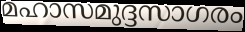
മഹാസമുദ്ദസാഗരം